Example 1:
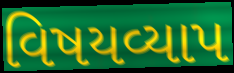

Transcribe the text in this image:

વિષયવ્યાપ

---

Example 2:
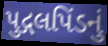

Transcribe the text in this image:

પુદ્ગલપિંડનું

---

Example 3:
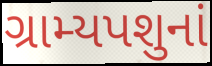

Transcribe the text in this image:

ગ્રામ્યપશુનાં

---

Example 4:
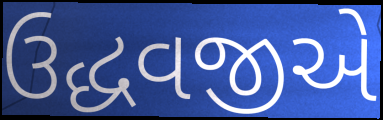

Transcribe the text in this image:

ઉદ્ધવજીએ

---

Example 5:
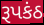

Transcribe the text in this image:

રૂપકંઠ